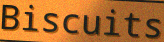
Biscuits